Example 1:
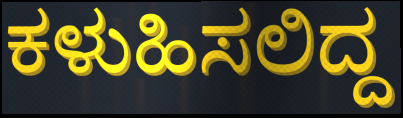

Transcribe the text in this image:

ಕಳುಹಿಸಲಿದ್ದ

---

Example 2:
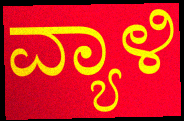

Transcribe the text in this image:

ವ್ಯಾಳಿ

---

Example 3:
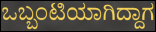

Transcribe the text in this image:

ಒಬ್ಬಂಟಿಯಾಗಿದ್ದಾಗ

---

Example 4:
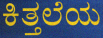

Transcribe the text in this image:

ಕಿತ್ತಲೆಯ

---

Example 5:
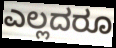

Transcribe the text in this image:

ಎಲ್ಲದರೂ